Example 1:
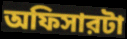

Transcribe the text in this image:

অফিসারটা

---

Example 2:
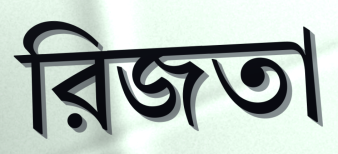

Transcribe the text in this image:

রিজতা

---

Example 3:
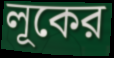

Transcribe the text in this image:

লূকের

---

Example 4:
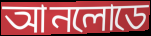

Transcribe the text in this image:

আনলোডে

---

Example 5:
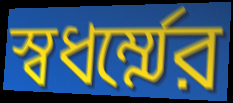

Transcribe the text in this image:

স্বধর্ম্মের